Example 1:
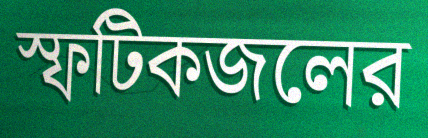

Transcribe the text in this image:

স্ফটিকজলের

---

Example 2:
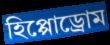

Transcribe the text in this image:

হিপ্পোড্রোম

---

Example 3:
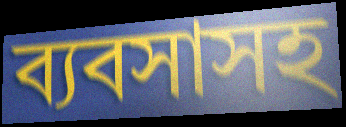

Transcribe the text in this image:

ব্যবসাসহ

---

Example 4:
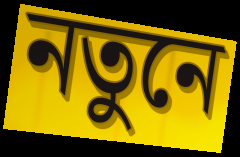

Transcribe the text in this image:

নতুনে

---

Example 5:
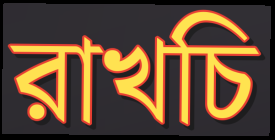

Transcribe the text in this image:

রাখচি